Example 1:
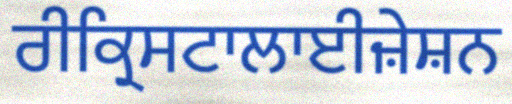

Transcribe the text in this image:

ਰੀਕ੍ਰਿਸਟਾਲਾਈਜ਼ੇਸ਼ਨ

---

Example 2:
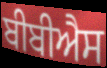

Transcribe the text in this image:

ਬੀਬੀਐਸ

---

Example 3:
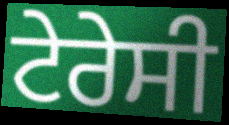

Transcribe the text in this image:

ਟੇਰੇਸੀ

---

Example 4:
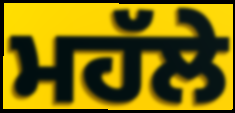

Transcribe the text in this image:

ਮਹੱਲੇ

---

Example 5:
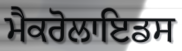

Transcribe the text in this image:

ਮੈਕਰੋਲਾਇਡਸ